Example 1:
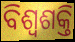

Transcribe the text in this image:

ବିଶ୍ଵଶକ୍ତି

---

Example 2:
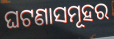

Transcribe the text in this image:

ଘଟଣାସମୂହର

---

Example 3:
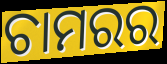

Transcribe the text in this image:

ଚାମରର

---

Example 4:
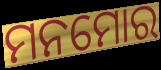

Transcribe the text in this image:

ମନମୋର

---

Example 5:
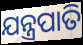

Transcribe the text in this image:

ଯନ୍ତ୍ରପାତି